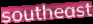
southeast